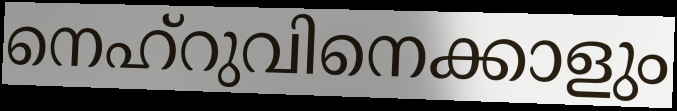
നെഹ്റുവിനെക്കാളും